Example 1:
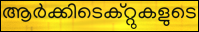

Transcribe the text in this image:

ആർക്കിടെക്റ്റുകളുടെ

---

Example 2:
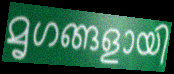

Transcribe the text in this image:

മൃഗങ്ങളായി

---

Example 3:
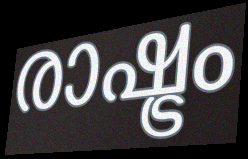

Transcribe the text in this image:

രാഷ്ട്രം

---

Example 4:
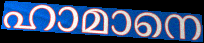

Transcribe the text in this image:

ഹാമാനെ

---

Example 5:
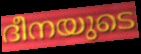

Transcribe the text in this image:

ദീനയുടെ